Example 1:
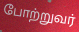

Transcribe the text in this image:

போற்றுவர்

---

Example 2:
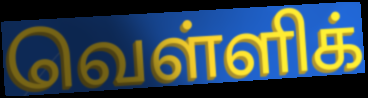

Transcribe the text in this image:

வெள்ளிக்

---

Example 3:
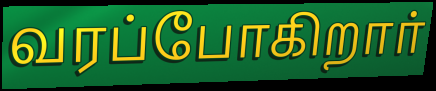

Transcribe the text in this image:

வரப்போகிறார்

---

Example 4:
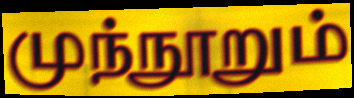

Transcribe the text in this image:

முந்நூறும்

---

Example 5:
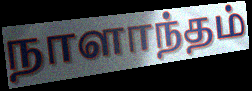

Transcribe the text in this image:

நாளாந்தம்